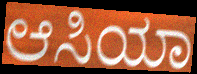
ಆಸಿಯಾ